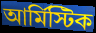
আর্মিস্টিক